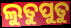
ଲୁତୁପୁତୁ